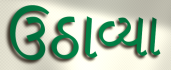
ઉઠાવ્યા